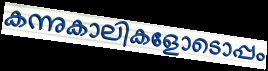
കന്നുകാലികളോടൊപ്പം